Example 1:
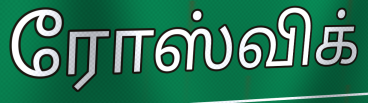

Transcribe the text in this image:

ரோஸ்விக்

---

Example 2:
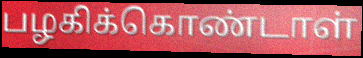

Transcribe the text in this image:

பழகிக்கொண்டாள்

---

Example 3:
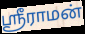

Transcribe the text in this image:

ஸ்ரீராமன்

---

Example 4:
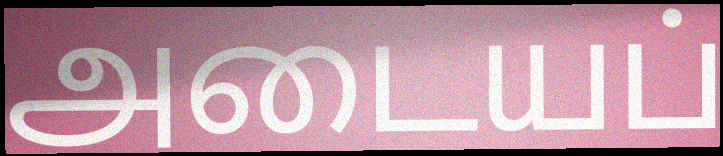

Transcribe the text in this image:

அடையப்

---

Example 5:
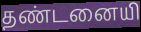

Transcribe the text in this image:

தண்டனையி